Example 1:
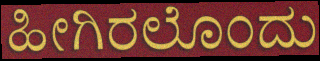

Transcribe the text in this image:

ಹೀಗಿರಲೊಂದು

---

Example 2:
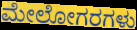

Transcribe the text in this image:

ಮೇಲೋಗರಗಳು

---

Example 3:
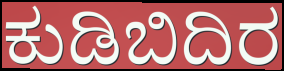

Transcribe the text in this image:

ಕುಡಿಬಿದಿರ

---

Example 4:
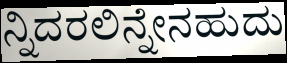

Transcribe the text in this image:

ನ್ನಿದರಲಿನ್ನೇನಹುದು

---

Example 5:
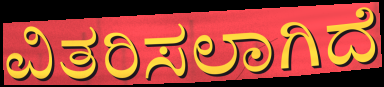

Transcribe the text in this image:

ವಿತರಿಸಲಾಗಿದೆ